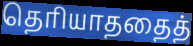
தெரியாததைத்